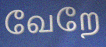
வேறே